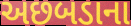
અછબડાના